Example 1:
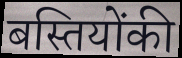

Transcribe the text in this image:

बस्तियोंकी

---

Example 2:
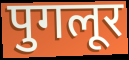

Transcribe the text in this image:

पुगलूर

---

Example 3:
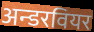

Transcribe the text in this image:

अन्डरवियर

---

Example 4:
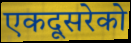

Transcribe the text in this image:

एकदूसरेको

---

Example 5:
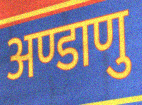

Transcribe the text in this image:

अण्डाणु